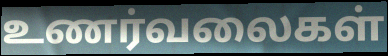
உணர்வலைகள்